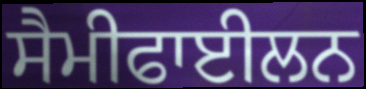
ਸੈਮੀਫਾਈਲਨ